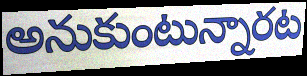
అనుకుంటున్నారట